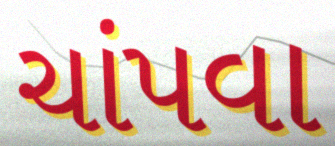
ચાંપવા